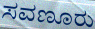
ಸವಣೂರು